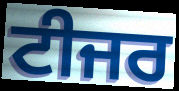
ਟੀਜਰ